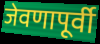
जेवणापूर्वी